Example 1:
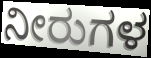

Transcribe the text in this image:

ನೀರುಗಳ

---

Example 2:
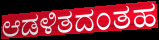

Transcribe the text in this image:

ಆಡಳಿತದಂತಹ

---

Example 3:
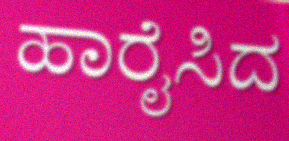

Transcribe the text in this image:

ಹಾರೈಸಿದ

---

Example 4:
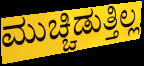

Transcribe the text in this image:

ಮುಚ್ಚಿಡುತ್ತಿಲ್ಲ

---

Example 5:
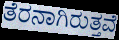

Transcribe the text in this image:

ತೆರನಾಗಿರುತ್ತವೆ